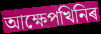
আক্ষেপখিনিৰ